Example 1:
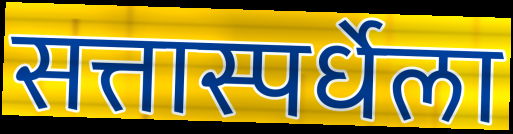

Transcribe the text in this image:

सत्तास्पर्धेला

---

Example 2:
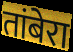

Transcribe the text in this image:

तांबेरा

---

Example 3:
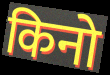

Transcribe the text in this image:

किनो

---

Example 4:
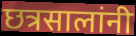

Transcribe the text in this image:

छत्रसालांनी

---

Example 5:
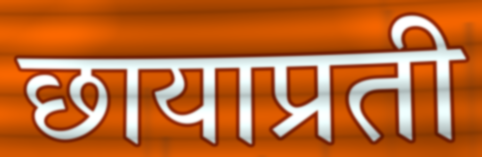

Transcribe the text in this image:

छायाप्रती